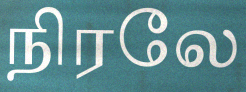
நிரலே